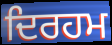
ਦਿਰਹਮ